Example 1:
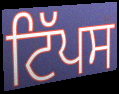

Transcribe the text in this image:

ਟਿੱਪਸ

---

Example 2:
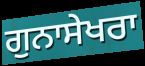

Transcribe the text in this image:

ਗੁਨਾਸੇਖਰਾ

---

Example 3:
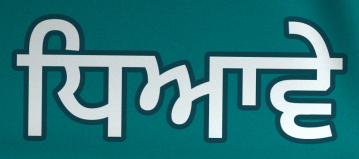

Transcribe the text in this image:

ਧਿਆਵੇ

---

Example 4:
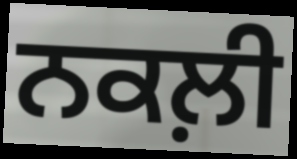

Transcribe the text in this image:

ਨਕਲ਼ੀ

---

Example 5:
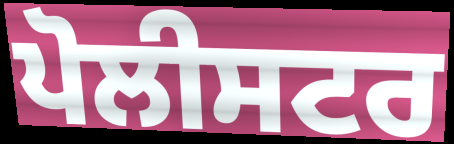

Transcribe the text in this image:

ਪੋਲੀਸਟਰ